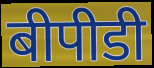
बीपीडी